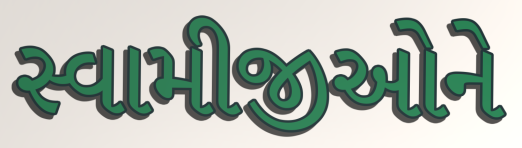
સ્વામીજીઓને